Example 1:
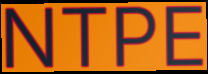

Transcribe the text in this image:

NTPE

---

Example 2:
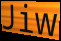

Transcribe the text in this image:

Jiw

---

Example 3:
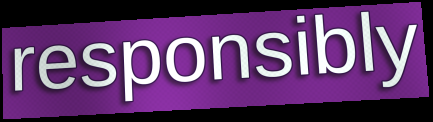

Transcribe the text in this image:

responsibly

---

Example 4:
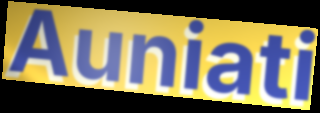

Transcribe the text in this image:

Auniati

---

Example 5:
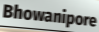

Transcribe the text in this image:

Bhowanipore